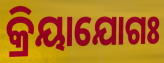
କ୍ରିୟାଯୋଗଃ